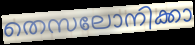
തെസലോനിക്കാ